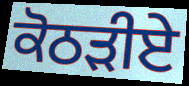
ਕੋਠੜੀਏ